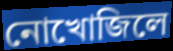
নোখোজিলে